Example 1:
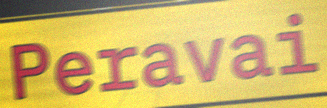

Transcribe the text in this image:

Peravai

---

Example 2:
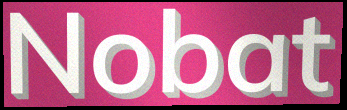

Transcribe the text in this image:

Nobat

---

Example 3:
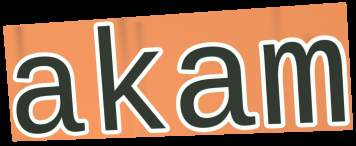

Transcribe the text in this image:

akam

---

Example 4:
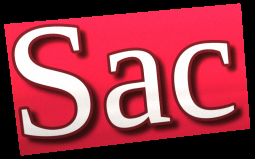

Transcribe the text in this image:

Sac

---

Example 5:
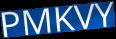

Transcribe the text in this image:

PMKVY